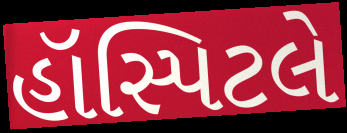
હૉસ્પિટલે